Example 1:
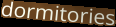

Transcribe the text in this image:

dormitories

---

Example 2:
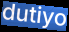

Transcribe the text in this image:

dutiyo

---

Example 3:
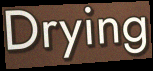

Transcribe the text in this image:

Drying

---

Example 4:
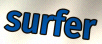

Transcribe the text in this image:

surfer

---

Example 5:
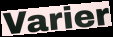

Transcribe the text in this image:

Varier